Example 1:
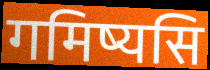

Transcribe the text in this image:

गमिष्यसि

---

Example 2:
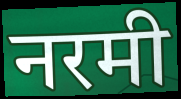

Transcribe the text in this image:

नरमी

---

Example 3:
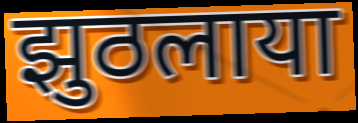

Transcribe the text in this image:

झुठलाया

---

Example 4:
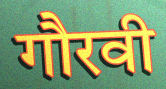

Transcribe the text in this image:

गौरवी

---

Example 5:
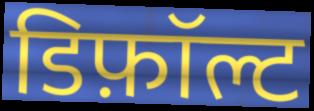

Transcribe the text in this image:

डिफ़ॉल्ट